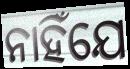
ନାହିଁଯେ